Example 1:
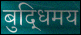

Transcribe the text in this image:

बुद्धिमय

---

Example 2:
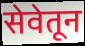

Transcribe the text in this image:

सेवेतून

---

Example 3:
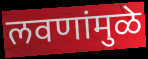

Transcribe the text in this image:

लवणांमुळे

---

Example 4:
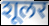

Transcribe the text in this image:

शूलर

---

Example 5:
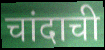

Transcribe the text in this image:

चांदाची